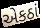
એકઠાં